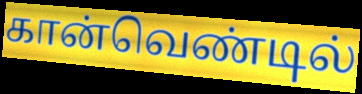
கான்வெண்டில்